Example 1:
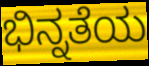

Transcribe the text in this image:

ಭಿನ್ನತೆಯ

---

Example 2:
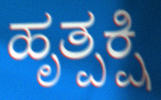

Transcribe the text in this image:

ಹೃತ್ಪಕ್ಷಿ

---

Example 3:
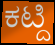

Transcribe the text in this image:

ಕಟ್ದಿ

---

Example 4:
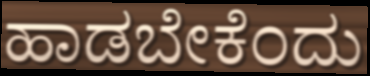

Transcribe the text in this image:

ಹಾಡಬೇಕೆಂದು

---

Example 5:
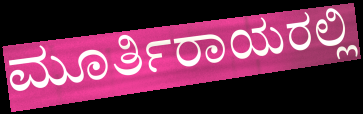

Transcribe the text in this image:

ಮೂರ್ತಿರಾಯರಲ್ಲಿ